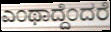
ಎಂಥಾದ್ದೆಂದರೆ